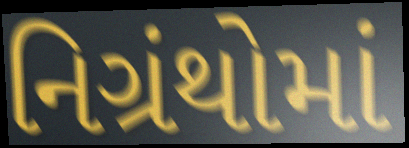
નિગ્રંથોમાં